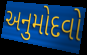
અનુમોદવો